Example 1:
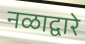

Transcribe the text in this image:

नळाद्वारे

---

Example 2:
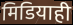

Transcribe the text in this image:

मिडियाही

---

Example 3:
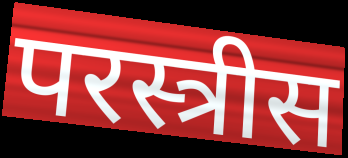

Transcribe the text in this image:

परस्त्रीस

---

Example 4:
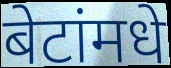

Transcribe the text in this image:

बेटांमधे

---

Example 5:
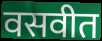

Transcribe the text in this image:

वसवीत